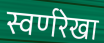
स्वर्णरेखा